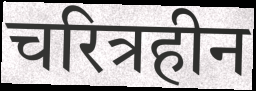
चरित्रहीन